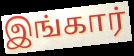
இங்கார்